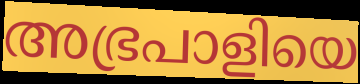
അഭ്രപാളിയെ